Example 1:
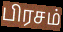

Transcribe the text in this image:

பிரசம்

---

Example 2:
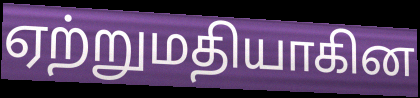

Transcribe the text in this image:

ஏற்றுமதியாகின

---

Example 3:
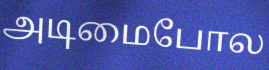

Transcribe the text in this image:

அடிமைபோல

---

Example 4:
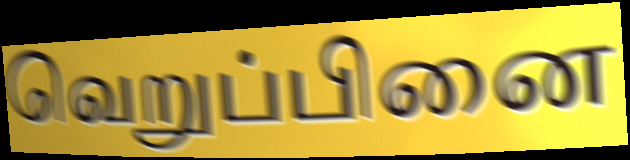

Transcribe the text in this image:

வெறுப்பினை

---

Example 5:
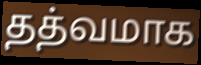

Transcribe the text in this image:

தத்வமாக